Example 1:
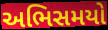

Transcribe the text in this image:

અભિસમયો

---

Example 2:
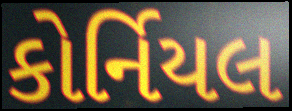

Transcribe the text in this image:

કોર્નિયલ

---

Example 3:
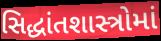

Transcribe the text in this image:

સિદ્ધાંતશાસ્ત્રોમાં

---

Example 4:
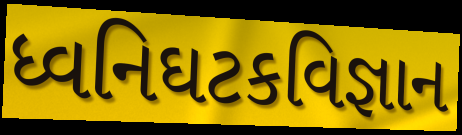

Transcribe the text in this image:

ધ્વનિઘટકવિજ્ઞાન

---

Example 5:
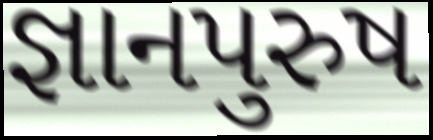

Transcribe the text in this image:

જ્ઞાનપુરુષ